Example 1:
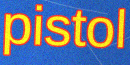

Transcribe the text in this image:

pistol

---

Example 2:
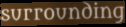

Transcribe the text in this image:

surrounding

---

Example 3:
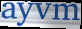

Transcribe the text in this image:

ayvm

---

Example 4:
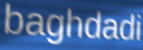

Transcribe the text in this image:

baghdadi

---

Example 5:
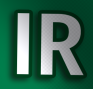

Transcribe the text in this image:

IR